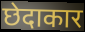
छेदाकार